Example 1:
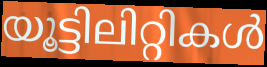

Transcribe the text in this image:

യൂട്ടിലിറ്റികൾ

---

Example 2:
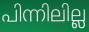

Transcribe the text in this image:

പിന്നിലില്ല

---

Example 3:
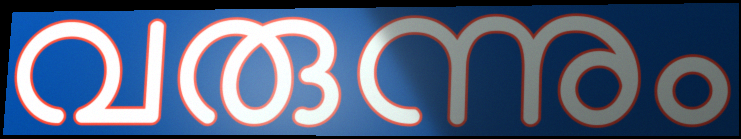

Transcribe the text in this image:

വരുന്നും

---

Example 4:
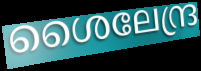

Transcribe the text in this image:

ശൈലേന്ദ്ര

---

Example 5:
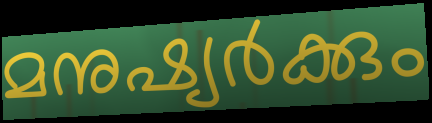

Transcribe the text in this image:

മനുഷ്യർക്കും